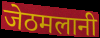
जेठमलानी